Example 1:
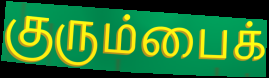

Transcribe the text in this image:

குரும்பைக்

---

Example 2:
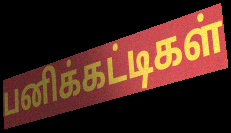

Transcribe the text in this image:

பனிக்கட்டிகள்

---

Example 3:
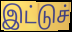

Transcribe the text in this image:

இட்டுச்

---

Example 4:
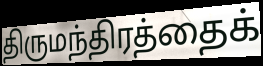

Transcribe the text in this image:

திருமந்திரத்தைக்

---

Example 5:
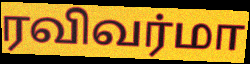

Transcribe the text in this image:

ரவிவர்மா